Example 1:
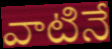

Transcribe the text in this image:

వాటినే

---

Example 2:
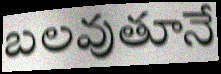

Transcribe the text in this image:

బలవుతూనే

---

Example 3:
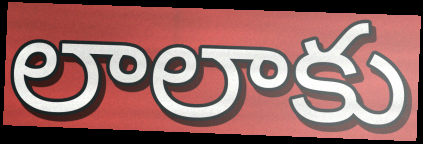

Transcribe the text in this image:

లాలాకు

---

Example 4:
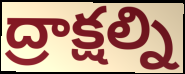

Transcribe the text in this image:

ద్రాక్షల్ని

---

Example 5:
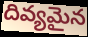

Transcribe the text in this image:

దివ్యమైన